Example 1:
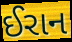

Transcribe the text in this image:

ઈરાન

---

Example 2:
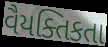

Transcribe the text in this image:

વૈયક્તિકતા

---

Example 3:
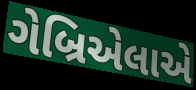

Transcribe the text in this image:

ગેબ્રિએલાએ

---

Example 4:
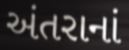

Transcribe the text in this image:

અંતરાનાં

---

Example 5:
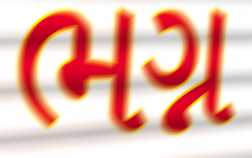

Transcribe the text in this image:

ભગ્ન